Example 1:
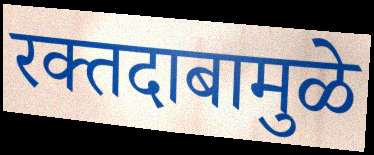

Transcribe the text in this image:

रक्तदाबामुळे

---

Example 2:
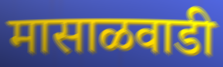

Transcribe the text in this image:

मासाळवाडी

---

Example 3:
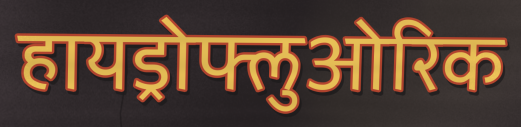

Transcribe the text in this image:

हायड्रोफ्लुओरिक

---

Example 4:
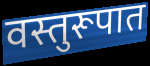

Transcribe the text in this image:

वस्तुरूपात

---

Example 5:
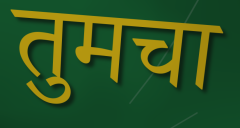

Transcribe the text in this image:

तुमचा